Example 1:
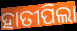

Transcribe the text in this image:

ହାତୀପିଲା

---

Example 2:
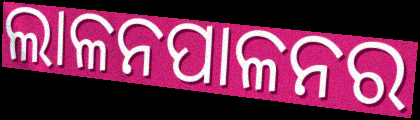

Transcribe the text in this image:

ଲାଳନପାଳନର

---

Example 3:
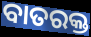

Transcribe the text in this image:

ବାତରକ୍ତ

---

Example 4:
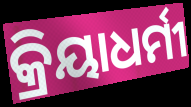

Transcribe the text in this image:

କ୍ରିୟାଧର୍ମୀ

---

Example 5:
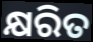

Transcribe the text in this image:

କ୍ଷରିତ